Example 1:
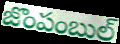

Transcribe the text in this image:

జొంపంబుల్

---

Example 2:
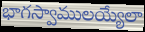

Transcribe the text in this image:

భాగస్వాములయ్యేలా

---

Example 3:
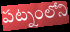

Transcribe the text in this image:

పట్నంలోని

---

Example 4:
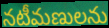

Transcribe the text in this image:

నటీమణులను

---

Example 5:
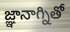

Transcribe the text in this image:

జ్ఞానాగ్నితో